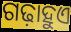
ଗଢ଼ାହୁଏ